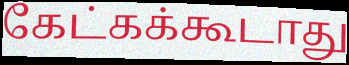
கேட்கக்கூடாது